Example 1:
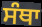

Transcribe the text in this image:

ਸੰਥਾ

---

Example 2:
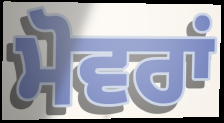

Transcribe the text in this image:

ਮੋਵਰਾਂ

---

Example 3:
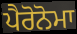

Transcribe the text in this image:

ਪੈਰੋਨੋਮਾ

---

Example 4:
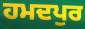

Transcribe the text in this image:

ਹਮਦਪੁਰ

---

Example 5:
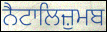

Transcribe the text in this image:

ਨੈਟਾਲਿਜ਼ੁਮਬ